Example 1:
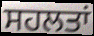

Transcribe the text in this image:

ਸਹਲਤਾਂ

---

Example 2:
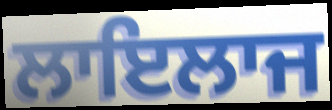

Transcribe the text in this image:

ਲਾਇਲਾਜ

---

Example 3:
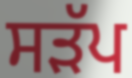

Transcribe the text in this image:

ਸੜੱਪ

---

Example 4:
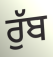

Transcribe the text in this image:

ਰੁੱਬ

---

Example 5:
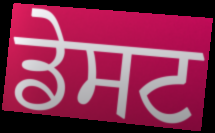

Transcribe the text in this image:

ਡੇਸਟ